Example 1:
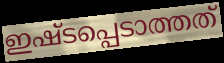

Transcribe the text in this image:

ഇഷ്ടപ്പെടാത്തത്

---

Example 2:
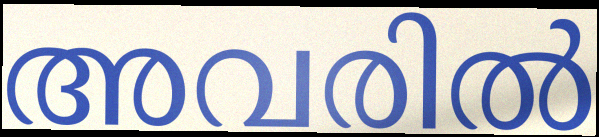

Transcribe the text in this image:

അവരിൽ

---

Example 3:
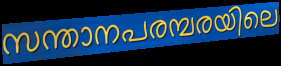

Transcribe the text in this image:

സന്താനപരമ്പരയിലെ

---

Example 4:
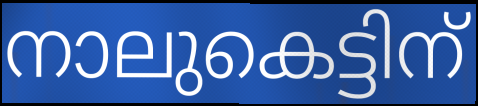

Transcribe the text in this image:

നാലുകെട്ടിന്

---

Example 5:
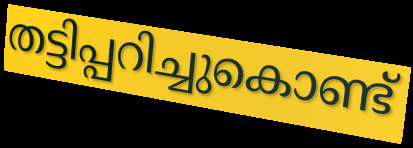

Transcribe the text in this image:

തട്ടിപ്പറിച്ചുകൊണ്ട്